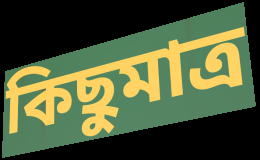
কিছুমাত্র